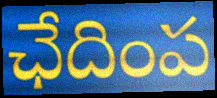
ఛేదింప